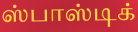
ஸ்பாஸ்டிக்